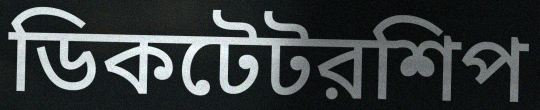
ডিকটেটরশিপ